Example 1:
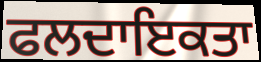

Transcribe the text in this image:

ਫਲਦਾਇਕਤਾ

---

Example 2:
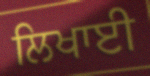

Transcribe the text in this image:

ਲਿਖਾਈ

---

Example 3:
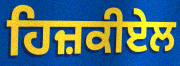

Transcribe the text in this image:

ਹਿਜ਼ਕੀਏਲ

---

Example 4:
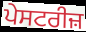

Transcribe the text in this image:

ਪੇਸਟਰੀਜ਼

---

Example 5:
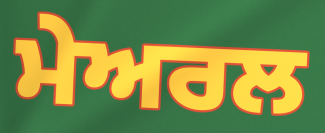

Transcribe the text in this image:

ਮੇਅਰਲ